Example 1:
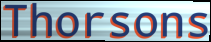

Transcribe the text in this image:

Thorsons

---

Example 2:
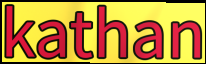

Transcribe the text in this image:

kathan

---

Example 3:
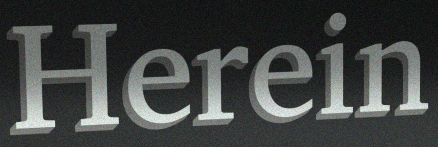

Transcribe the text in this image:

Herein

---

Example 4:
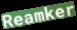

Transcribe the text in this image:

Reamker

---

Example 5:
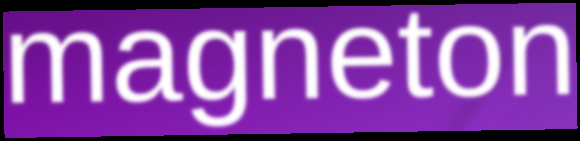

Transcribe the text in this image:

magneton